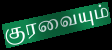
குரவையும்